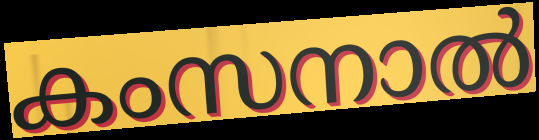
കംസനാൽ